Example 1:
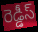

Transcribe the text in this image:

రెడ్డీస్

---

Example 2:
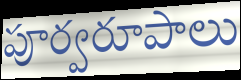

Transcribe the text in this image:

పూర్వరూపాలు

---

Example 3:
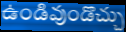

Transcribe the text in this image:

ఉండివుండొచ్చు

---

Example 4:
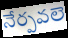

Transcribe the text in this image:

నేర్పవలె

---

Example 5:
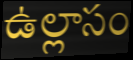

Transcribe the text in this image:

ఉల్లాసం